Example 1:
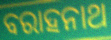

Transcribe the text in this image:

ବରାହନାଥ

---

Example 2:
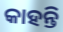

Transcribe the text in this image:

କାହନ୍ତି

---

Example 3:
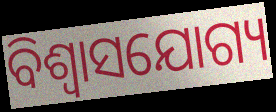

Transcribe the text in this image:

ବିଶ୍ବାସଯୋଗ୍ୟ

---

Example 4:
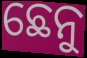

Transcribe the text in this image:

ଛେନୁ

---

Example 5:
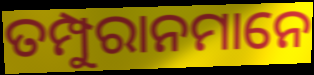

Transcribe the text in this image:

ତମ୍ପୁରାନମାନେ